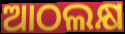
ଆଠଲକ୍ଷ